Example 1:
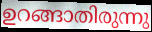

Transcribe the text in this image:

ഉറങ്ങാതിരുന്നു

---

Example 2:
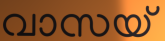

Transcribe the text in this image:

വാസയ്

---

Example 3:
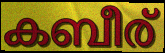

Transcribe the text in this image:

കബീര്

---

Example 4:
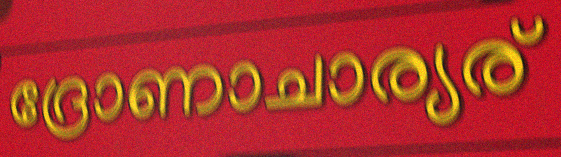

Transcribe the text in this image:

ദ്രോണാചാര്യര്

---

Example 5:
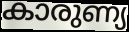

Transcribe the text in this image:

കാരുണ്യ